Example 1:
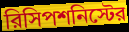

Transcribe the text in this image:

রিসিপশনিস্টের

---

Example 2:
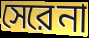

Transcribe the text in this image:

সেরেনা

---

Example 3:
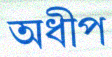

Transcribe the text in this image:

অধীপ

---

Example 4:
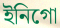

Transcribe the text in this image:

ইনিগো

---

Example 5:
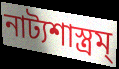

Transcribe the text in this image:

নাট্যশাস্ত্রম্